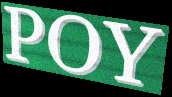
POY